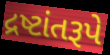
દ્રષ્ટાંતરૂપે